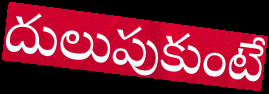
దులుపుకుంటే